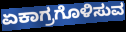
ಏಕಾಗ್ರಗೊಳಿಸುವ